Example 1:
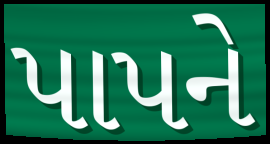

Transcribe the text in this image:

પાપને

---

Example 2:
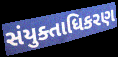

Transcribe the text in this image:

સંયુક્તાધિકરણ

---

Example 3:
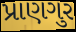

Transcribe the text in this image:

પ્રાણગુર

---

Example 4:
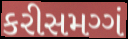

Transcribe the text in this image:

કરીસમગ્ગં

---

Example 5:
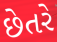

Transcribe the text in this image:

છેતરે